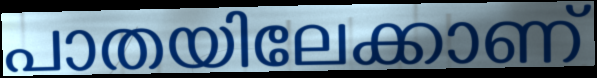
പാതയിലേക്കാണ്